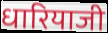
धारियाजी